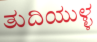
ತುದಿಯುಳ್ಳ